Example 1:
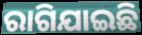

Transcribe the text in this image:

ରାଗିଯାଇଛି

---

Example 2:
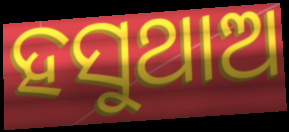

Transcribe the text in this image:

ହସୁଥାଅ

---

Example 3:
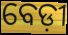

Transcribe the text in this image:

ବେଡ଼ୀ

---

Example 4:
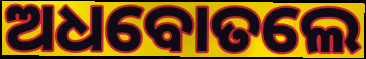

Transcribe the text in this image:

ଅଧବୋତଲେ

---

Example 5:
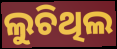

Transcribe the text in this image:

ଲୁଚିଥିଲ